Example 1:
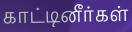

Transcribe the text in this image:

காட்டினீர்கள்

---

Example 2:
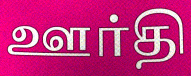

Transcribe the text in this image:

ஊர்தி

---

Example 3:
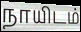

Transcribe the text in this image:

நாயிடம்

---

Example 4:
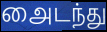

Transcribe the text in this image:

அைடந்து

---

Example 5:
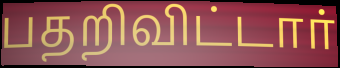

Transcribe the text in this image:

பதறிவிட்டார்